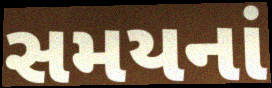
સમયનાં